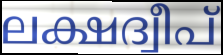
ലക്ഷദ്വീപ്